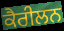
ਕੈਰੀਲਨ